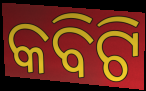
କବିଟି